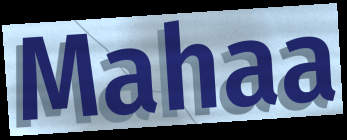
Mahaa